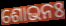
ଶୋଭନଃ